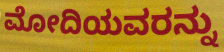
ಮೋದಿಯವರನ್ನು